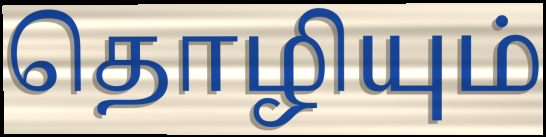
தொழியும்